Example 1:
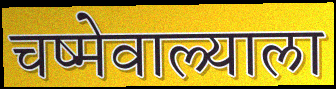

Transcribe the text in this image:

चष्मेवाल्याला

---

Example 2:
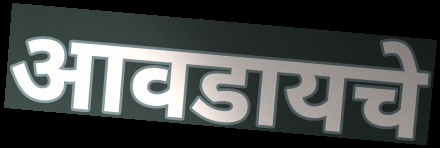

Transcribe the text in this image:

आवडायचे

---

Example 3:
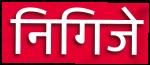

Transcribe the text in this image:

निगिजे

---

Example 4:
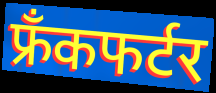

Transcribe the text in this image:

फ्रँकफर्टर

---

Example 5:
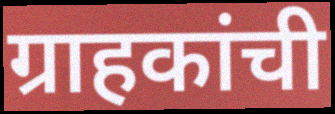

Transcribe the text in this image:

ग्राहकांची